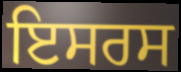
ਇਸਰਸ